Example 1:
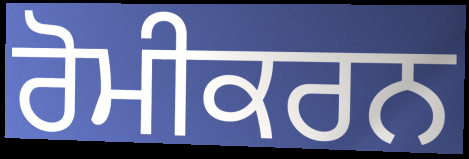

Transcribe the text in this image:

ਰੋਮੀਕਰਨ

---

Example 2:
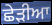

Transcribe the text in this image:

ਛੇੜੀਆ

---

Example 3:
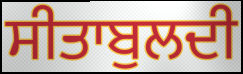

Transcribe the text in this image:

ਸੀਤਾਬੁਲਦੀ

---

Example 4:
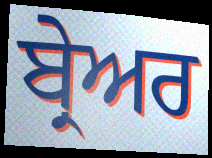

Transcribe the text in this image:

ਬ੍ਰੇਅਰ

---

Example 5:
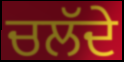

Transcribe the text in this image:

ਚਲੱਦੇ